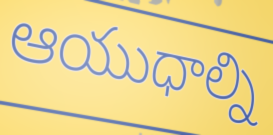
ఆయుధాల్ని